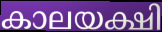
കാലയക്ഷി